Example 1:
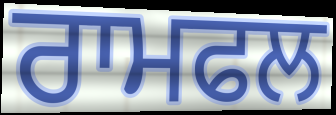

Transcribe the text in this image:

ਰਾਮਫਲ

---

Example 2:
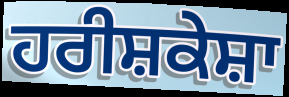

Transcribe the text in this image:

ਹਰੀਸ਼ਕੇਸ਼ਾ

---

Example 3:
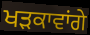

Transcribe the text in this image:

ਖੜਕਾਵਾਂਗੇ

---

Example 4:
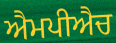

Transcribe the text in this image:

ਐਮਪੀਐਚ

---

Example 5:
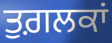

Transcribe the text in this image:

ਤੁਗ਼ਲਕਾਂ